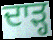
ਦਾੜ੍ਹ